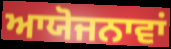
ਆਯੋਜਨਾਵਾਂ